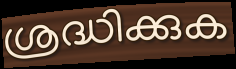
ശ്രദ്ധിക്കുക